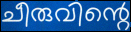
ചീരുവിന്റെ